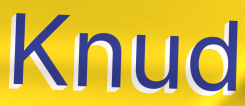
Knud